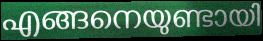
എങ്ങനെയുണ്ടായി